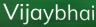
Vijaybhai